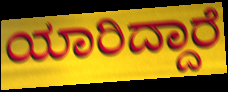
ಯಾರಿದ್ದಾರೆ